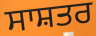
ਸਾਸ਼ਤਰ